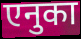
एनुका